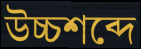
উচ্চশব্দে